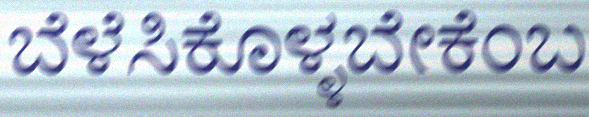
ಬೆಳೆಸಿಕೊಳ್ಳಬೇಕೆಂಬ